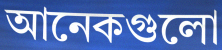
আনেকগুলো